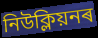
নিউক্লিয়নৰ